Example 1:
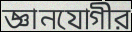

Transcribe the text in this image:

জ্ঞানযোগীর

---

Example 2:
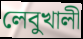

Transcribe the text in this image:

লেবুখালী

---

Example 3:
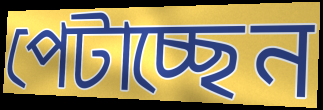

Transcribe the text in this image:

পেটাচ্ছেন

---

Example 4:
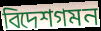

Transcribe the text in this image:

বিদেশগমন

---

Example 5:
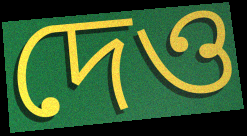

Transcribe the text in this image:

দেও